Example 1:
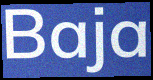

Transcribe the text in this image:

Baja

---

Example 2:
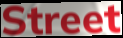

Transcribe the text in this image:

Street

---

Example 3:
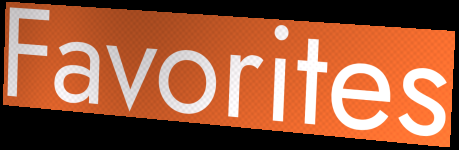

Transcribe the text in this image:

Favorites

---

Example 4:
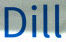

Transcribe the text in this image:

Dill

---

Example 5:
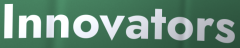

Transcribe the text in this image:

Innovators